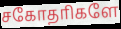
சகோதரிகளே